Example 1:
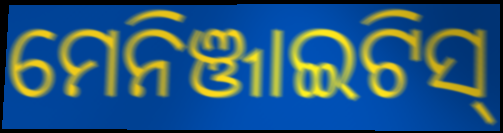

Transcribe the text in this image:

ମେନିଞ୍ଜାଇଟିସ୍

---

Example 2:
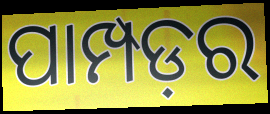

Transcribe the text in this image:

ପାମ୍ପଡ଼ର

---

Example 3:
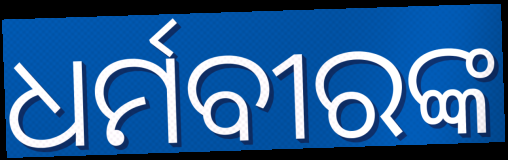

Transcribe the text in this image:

ଧର୍ମବୀରଙ୍କ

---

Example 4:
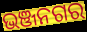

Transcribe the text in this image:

ଭଞ୍ଜନଗର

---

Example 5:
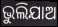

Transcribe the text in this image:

ଭୁଲିଯାଅ